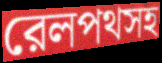
রেলপথসহ